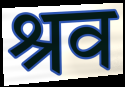
श्रव